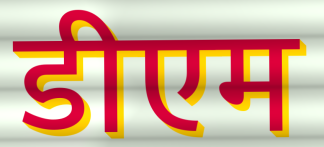
डीएम